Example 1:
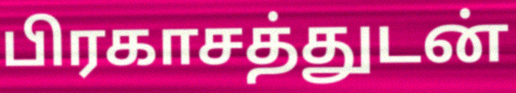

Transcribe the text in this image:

பிரகாசத்துடன்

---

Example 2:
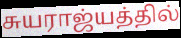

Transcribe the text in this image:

சுயராஜ்யத்தில்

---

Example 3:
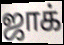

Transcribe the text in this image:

ஜாக்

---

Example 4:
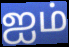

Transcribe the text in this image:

ஐம்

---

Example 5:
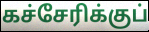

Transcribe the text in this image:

கச்சேரிக்குப்